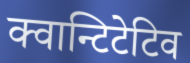
क्वान्टिटेटिव